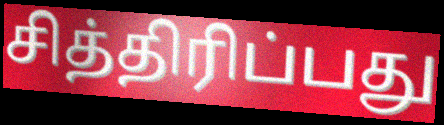
சித்திரிப்பது